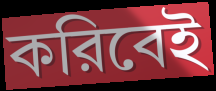
করিবেই